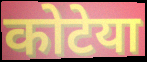
कोटेया